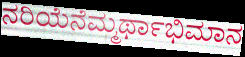
ನರಿಯೆನೆಮ್ಮರ್ಥಾಭಿಮಾನ